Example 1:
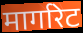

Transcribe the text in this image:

मार्गारेट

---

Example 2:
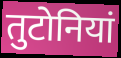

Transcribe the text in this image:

तुटोनियां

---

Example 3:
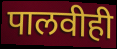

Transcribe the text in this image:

पालवीही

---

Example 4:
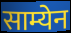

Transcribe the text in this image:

साम्येन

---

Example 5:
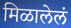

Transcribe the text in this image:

मिळालेलं